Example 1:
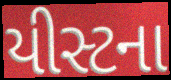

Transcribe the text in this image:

યીસ્ટના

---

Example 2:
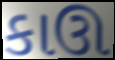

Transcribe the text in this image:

કાઊ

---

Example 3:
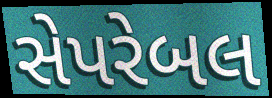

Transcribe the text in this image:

સેપરેબલ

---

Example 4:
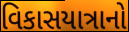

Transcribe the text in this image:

વિકાસયાત્રાનો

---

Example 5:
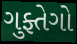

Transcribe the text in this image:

ગુફ્તેગો